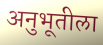
अनुभूतीला